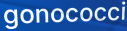
gonococci